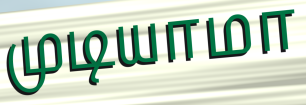
முடியாமா